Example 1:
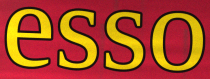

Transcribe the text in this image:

esso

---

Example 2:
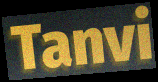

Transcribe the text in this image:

Tanvi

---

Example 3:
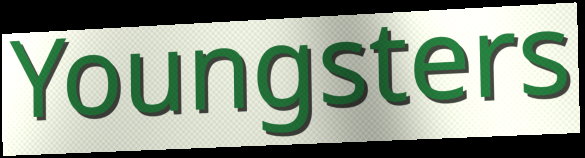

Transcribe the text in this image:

Youngsters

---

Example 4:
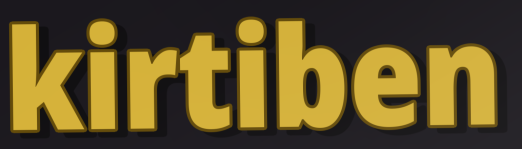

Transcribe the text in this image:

kirtiben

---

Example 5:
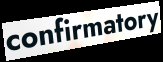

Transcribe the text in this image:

confirmatory